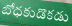
బోధకుడొకడు